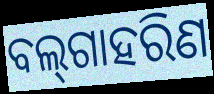
ବଲ୍‌ଗାହରିଣ